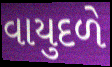
વાયુદળે